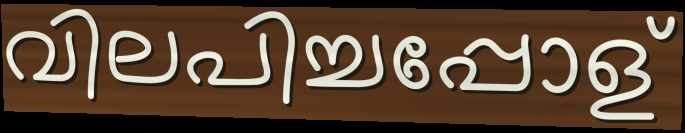
വിലപിച്ചപ്പോള്